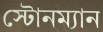
স্টোনম্যান